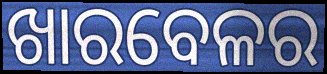
ଖାରବେଳର